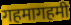
गहमागहमी